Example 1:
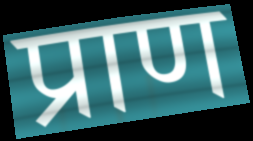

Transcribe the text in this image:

प्राण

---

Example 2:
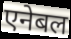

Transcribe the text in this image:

एनेबल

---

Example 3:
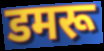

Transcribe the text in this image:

डमरू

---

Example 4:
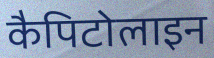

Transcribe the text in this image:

कैपिटोलाइन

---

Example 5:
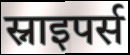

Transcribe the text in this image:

स्नाइपर्स